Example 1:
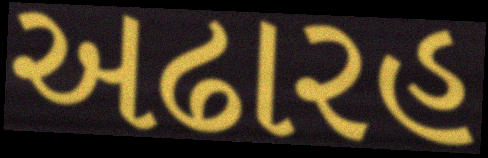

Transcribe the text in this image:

અઢારહ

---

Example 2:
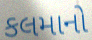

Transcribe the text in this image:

કલમાનો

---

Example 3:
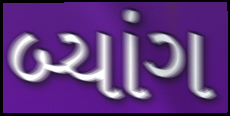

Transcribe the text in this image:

બ્યાંગ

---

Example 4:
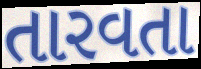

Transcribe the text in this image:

તારવતા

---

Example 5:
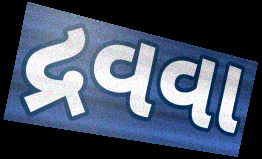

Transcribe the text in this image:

દ્રવવા